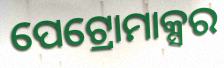
ପେଟ୍ରୋମାକ୍ସର